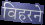
विहरने